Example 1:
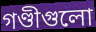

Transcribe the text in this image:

গণ্ডীগুলো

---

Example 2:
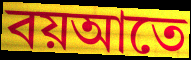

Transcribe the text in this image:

বয়আতে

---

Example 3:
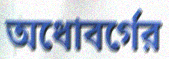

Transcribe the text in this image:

অধোবর্গের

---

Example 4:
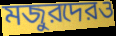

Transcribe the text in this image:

মজুরদেরও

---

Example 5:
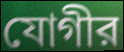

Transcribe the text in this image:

যোগীর